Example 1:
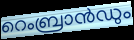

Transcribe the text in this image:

റെംബ്രാൻഡും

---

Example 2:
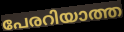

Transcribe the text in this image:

പേരറിയാത്ത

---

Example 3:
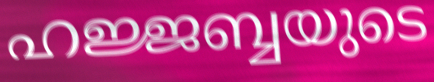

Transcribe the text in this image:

ഹജ്ജബ്ബയുടെ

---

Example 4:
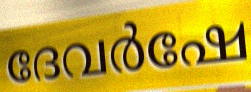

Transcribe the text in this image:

ദേവർഷേ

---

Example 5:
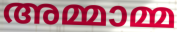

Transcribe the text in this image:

അമ്മാമ്മ